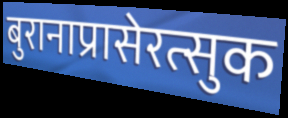
बुरानाप्रासेरत्सुक